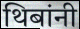
थिबांनी